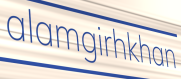
alamgirhkhan